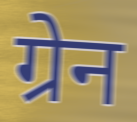
ग्रेन